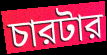
চারটার